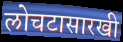
लोचटासारखी